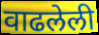
वाढलेली